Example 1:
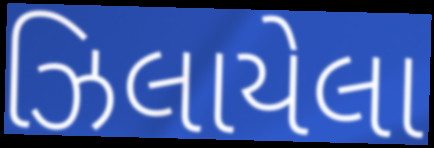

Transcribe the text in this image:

ઝિલાયેલા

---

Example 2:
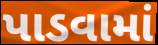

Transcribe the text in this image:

પાડવામાં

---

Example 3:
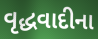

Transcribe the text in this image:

વૃદ્ધવાદીના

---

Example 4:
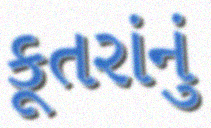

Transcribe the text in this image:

કૂતરાંનું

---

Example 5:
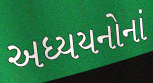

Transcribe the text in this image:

અધ્યયનોનાં